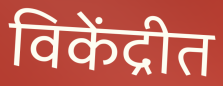
विकेंद्रीत